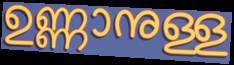
ഉണ്ണാനുള്ള